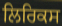
ਲਿਰਿਕਸ